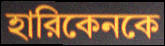
হারিকেনকে